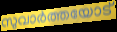
സുവാർത്തയോട്